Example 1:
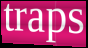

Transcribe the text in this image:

traps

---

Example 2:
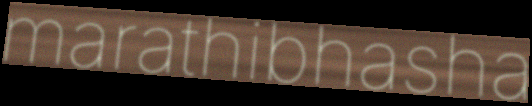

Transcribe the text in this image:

marathibhasha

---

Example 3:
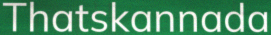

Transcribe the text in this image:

Thatskannada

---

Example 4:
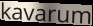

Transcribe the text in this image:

kavarum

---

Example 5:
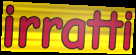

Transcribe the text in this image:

irratti